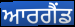
ਆਰਗੈਂਡ